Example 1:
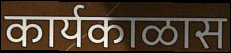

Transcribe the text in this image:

कार्यकाळास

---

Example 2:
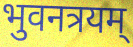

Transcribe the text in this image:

भुवनत्रयम्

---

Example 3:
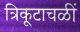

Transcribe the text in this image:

त्रिकूटाचळीं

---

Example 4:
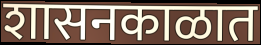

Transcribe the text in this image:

शासनकाळात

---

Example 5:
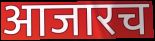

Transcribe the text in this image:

आजारच